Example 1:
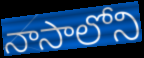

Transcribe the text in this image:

నాసాలోని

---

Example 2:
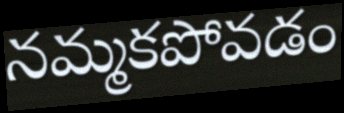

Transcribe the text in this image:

నమ్మకపోవడం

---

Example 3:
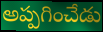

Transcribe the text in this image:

అప్పగించేడు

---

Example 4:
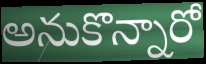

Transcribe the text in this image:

అనుకొన్నారో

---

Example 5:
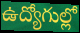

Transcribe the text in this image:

ఉద్యోగుల్లో